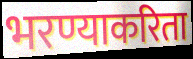
भरण्याकरिता